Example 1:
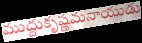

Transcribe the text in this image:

ముద్దుకృష్ణమనాయుడు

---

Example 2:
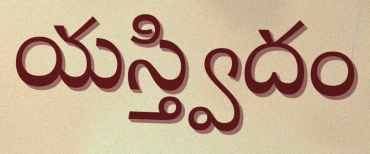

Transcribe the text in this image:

యస్త్విదం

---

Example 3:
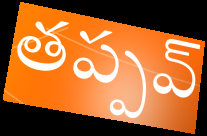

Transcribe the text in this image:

తప్పవ్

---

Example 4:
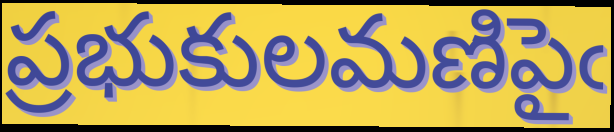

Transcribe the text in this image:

ప్రభుకులమణిపైఁ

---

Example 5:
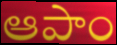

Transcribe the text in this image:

ఆపాం